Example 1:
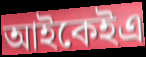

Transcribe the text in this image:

আইকেইএ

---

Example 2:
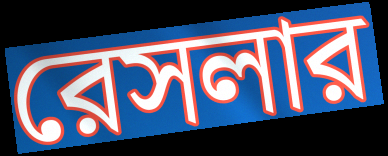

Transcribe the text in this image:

রেসলার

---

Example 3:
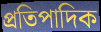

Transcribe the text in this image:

প্রতিপাদিক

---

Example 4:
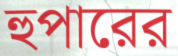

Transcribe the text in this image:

হুপারের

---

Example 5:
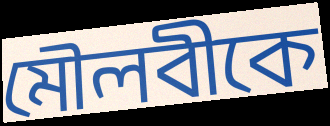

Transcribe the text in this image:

মৌলবীকে